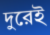
দুরেই